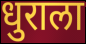
धुराला